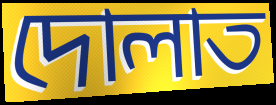
দোলাত